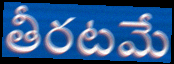
తీరటమే